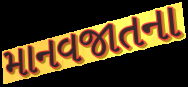
માનવજાતના